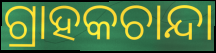
ଗ୍ରାହକଚାନ୍ଦା